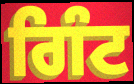
ਗਿੰਟ